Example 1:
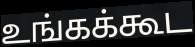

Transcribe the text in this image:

உங்கக்கூட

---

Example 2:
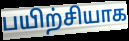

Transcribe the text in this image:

பயிற்சியாக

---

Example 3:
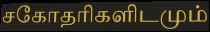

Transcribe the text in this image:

சகோதரிகளிடமும்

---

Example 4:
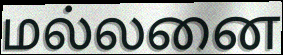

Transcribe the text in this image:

மல்லனை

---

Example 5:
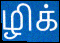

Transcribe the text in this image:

ழிக்